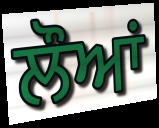
ਲੌਆਂ